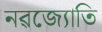
নৱজ্যোতি